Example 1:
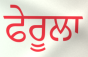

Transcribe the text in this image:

ਫੇਰੂਲਾ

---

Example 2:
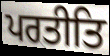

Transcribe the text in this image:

ਪਰਤੀਤਿ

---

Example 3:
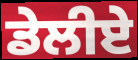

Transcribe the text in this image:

ਡੇਲੀਏ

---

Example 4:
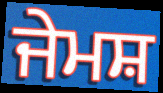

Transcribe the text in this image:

ਜੇਮਸ਼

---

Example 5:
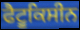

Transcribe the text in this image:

ਫੈਟੂਕਿਸੀਨ